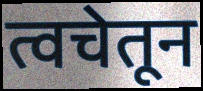
त्वचेतून